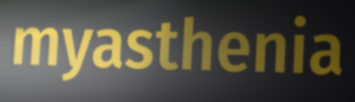
myasthenia